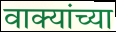
वाक्यांच्या